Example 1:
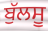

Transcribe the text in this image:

ਬੁੱਲਸੂ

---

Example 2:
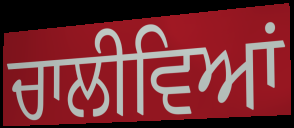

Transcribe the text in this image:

ਚਾਲੀਵਿਆਂ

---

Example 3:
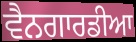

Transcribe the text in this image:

ਵੈਨਗਾਰਡੀਆ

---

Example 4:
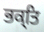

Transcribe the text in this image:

ਭਕ੍ਤਿ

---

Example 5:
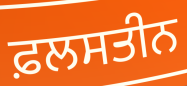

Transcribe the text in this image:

ਫ਼ਲਸਤੀਨ